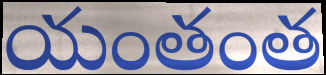
యంతంత